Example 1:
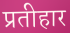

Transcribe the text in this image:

प्रतीहार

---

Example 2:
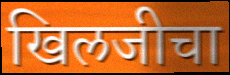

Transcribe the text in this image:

खिलजीचा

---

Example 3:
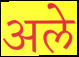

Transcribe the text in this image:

अले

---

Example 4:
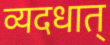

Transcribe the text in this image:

व्यदधात्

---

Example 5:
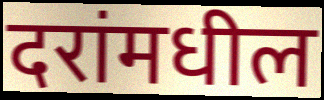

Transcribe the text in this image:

दरांमधील